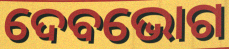
ଦେବଭୋଗ